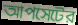
আপসেটের